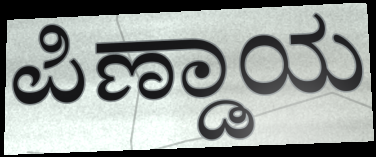
ಪಿಣ್ಡಾಯ